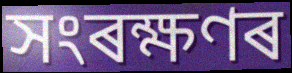
সংৰক্ষণৰ